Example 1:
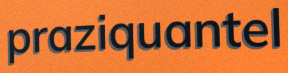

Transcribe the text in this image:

praziquantel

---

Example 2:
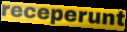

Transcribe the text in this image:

receperunt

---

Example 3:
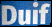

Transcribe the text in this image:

Duif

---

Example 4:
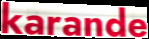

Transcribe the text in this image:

karande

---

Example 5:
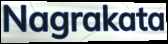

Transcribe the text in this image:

Nagrakata